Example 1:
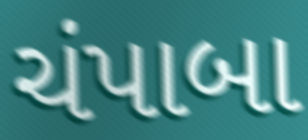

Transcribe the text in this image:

ચંપાબા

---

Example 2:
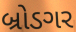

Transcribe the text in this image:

બ્રોડગર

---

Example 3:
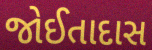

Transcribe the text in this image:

જોઈતાદાસ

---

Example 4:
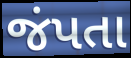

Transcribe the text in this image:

જંપતા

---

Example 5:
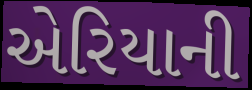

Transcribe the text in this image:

એરિયાની